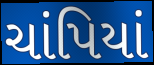
ચાંપિયાં